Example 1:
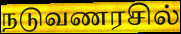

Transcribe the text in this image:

நடுவணரசில்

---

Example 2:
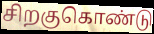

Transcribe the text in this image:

சிறகுகொண்டு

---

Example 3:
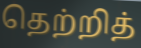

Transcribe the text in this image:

தெற்றித்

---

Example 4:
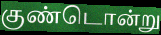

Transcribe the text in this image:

குண்டொன்று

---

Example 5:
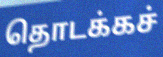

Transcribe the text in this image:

தொடக்கச்